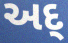
અદ્